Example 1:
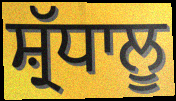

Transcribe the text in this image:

ਸ਼੍ਰੱਧਾਲੂ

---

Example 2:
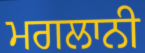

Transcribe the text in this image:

ਮਗਲਾਨੀ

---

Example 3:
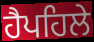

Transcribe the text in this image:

ਹੈਪਹਿਲੇ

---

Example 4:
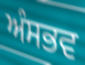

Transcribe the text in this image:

ਅੰਸਭਵ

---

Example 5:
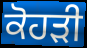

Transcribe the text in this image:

ਕੋਹੜੀ